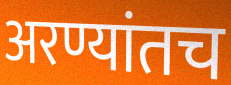
अरण्यांतच